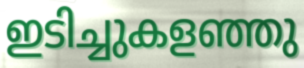
ഇടിച്ചുകളഞ്ഞു